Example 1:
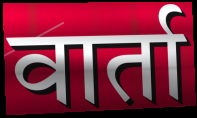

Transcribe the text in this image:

वार्ता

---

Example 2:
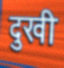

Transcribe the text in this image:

दुखी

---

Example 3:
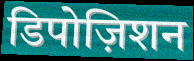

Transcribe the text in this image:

डिपोज़िशन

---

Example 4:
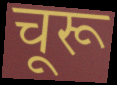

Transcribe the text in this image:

चूरू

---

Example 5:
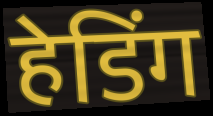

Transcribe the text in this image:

हेडिंग